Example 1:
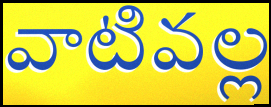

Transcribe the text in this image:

వాటివల్ల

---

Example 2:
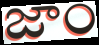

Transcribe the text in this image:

జాం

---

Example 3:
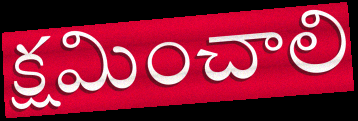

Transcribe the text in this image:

క్షమించాలి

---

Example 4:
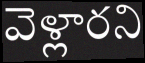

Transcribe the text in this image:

వెళ్లారని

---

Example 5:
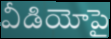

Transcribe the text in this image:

వీడియోపై